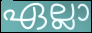
ഏല്ലാ